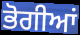
ਭੋਗੀਆਂ